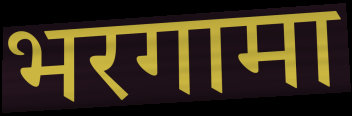
भरगामा